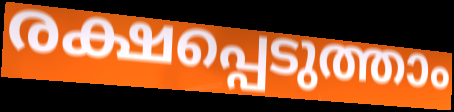
രക്ഷപ്പെടുത്താം